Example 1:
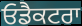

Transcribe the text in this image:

ਓਡੈਕਟਰਾ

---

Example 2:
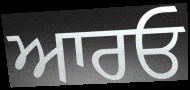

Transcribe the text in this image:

ਆਰਓ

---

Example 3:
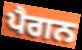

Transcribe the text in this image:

ਪੈਗਨ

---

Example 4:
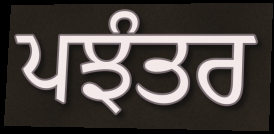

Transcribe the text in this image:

ਪਝੰਤਰ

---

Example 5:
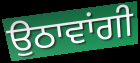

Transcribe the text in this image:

ਉਠਾਵਾਂਗੀ